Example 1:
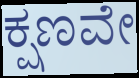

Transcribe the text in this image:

ಕ್ಷಣವೇ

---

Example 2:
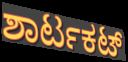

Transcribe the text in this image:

ಶಾರ್ಟಕಟ್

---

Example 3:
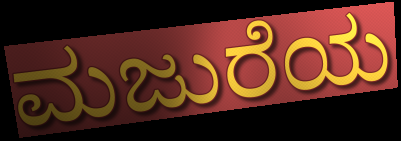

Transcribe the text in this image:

ಮಜುರೆಯ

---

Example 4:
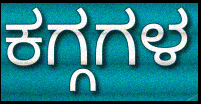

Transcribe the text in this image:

ಕಗ್ಗಗಳ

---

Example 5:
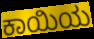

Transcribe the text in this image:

ಕಾಯಿಯ